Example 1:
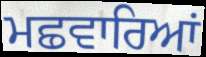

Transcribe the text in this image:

ਮਛਵਾਰਿਆਂ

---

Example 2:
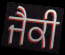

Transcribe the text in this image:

ਜੈਕੀ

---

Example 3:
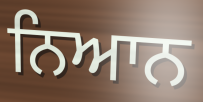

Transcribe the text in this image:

ਨਿਆਨ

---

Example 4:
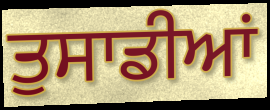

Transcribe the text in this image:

ਤੁਸਾਡੀਆਂ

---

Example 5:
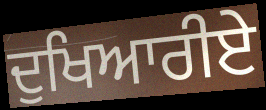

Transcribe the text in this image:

ਦੁਖਿਆਰੀਏ